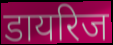
डायरिज